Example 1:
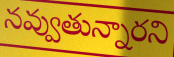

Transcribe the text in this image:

నవ్వుతున్నారని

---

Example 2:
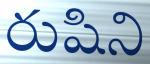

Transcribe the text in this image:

రుషిని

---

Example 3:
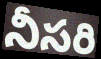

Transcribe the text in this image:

నీసరి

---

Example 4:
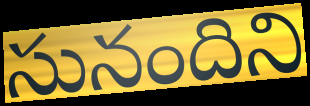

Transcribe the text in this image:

సునందిని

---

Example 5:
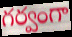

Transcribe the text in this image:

గర్వంగా